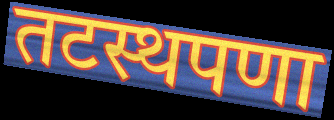
तटस्थपणा